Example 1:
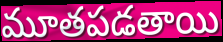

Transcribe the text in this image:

మూతపడతాయి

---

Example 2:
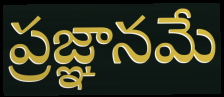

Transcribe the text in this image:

ప్రజ్ఞానమే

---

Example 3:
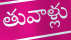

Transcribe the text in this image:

తువాళ్లు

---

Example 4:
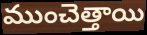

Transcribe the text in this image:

ముంచెత్తాయి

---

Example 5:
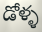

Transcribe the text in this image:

డోళ్ళ